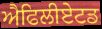
ਐਫਿਲੀਏਟਡ